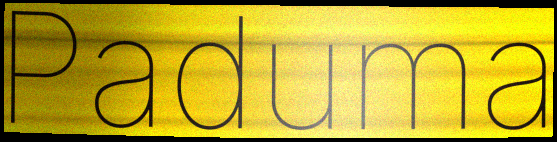
Paduma